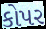
કોપર